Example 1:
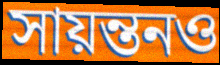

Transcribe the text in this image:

সায়ন্তনও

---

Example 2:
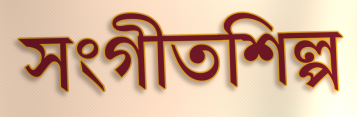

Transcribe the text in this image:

সংগীতশিল্প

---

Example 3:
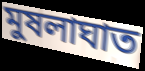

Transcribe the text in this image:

মুষলাঘাত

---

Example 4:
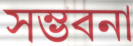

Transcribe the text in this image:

সম্ভবনা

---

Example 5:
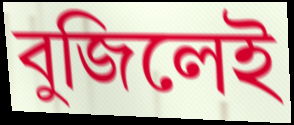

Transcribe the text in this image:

বুজিলেই